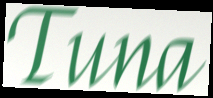
Tuna